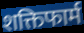
शक्तिफार्म